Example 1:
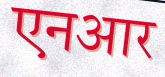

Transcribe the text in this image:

एनआर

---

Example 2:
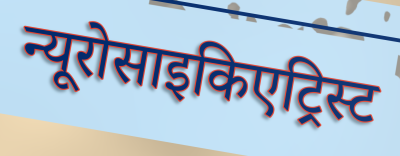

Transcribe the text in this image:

न्यूरोसाइकिएट्रिस्ट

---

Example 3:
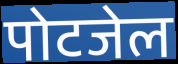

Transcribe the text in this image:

पोटजेल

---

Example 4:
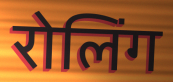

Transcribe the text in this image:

रोलिंग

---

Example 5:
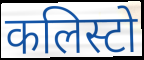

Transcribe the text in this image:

कलिस्टो